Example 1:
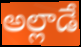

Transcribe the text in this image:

అల్లాడే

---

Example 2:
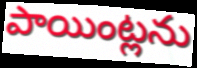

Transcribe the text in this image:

పాయింట్లను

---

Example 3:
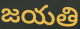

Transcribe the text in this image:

జయతి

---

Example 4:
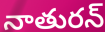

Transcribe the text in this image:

నాతురన్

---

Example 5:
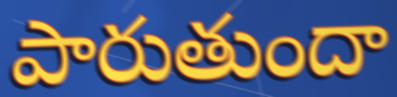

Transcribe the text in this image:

పారుతుందా